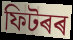
ফিটৰৰ